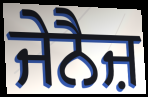
ਜੇਨੈਜ਼